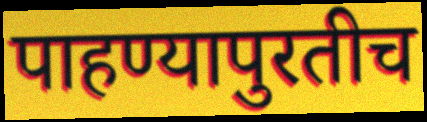
पाहण्यापुरतीच